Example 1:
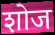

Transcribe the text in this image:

शोज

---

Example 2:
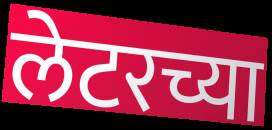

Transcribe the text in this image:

लेटरच्या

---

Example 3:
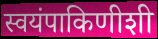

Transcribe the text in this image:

स्वयंपाकिणीशी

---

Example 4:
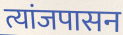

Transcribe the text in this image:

त्यांजपासन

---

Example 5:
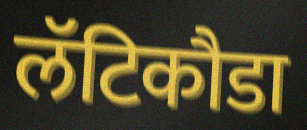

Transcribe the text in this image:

लॅटिकौडा